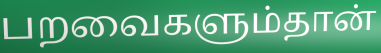
பறவைகளும்தான்